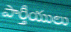
పార్తీయులు